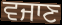
ਵਜਾਣ